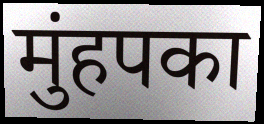
मुंहपका